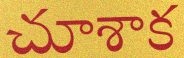
చూశాక